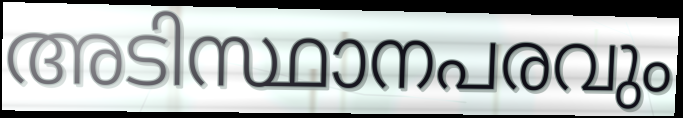
അടിസ്ഥാനപരവും